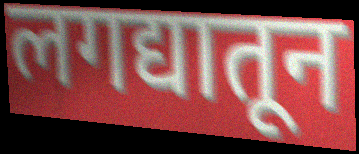
लगद्यातून